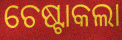
ଚେଷ୍ଟାକଲା